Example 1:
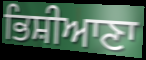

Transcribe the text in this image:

ਭਿਸ਼ੀਆਣਾ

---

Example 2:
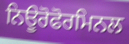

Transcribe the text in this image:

ਨਿਊਰੋਫੋਰਮਿਨਲ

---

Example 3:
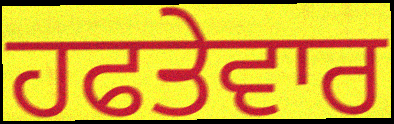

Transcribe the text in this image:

ਹਫਤੇਵਾਰ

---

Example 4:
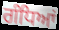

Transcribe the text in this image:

ਗੰਧਿਆਂ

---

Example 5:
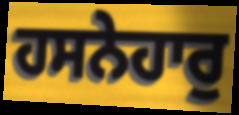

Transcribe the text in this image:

ਹਸਨੇਹਾਰੁ